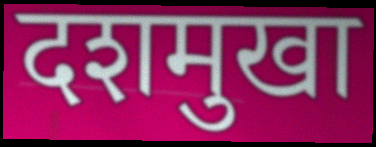
दशमुखा